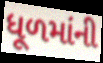
ધૂળમાંની